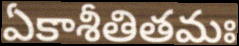
ఏకాశీతితమః